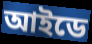
আইডে